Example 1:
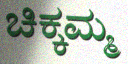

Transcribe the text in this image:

ಚಿಕ್ಕಮ್ಮ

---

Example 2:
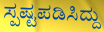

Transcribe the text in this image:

ಸ್ಪಷ್ಟಪಡಿಸಿದ್ದು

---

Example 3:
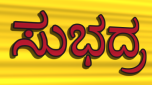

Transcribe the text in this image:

ಸುಭದ್ರ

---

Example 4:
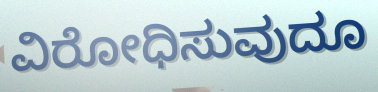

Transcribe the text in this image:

ವಿರೋಧಿಸುವುದೂ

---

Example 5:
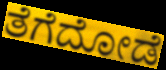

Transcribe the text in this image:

ತೆಗೆದೋಡೆ